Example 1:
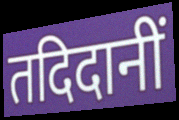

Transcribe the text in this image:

तदिदानीं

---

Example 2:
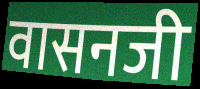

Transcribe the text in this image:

वासनजी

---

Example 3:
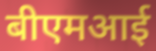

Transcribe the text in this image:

बीएमआई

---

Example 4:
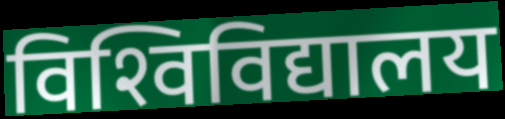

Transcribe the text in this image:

विश्विविद्यालय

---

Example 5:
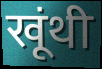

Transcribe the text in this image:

खूंथी